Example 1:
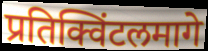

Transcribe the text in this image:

प्रतिक्विंटलमागे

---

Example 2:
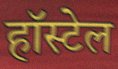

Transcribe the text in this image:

हॉस्टेल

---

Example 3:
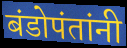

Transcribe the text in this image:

बंडोपंतांनी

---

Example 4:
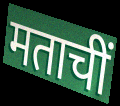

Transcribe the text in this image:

मताचीं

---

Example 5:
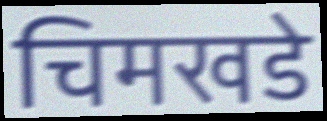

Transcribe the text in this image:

चिमखडे